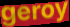
geroy